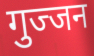
गुज्जन